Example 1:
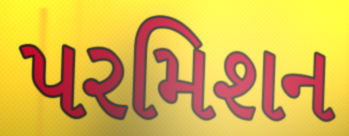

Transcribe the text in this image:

પરમિશન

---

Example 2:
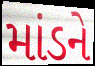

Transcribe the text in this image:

માંડને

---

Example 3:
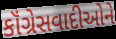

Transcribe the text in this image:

કૉંગ્રેસવાદીઓને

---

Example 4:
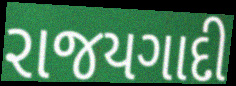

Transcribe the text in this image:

રાજયગાદી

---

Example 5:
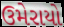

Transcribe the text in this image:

ઉમેરાયો